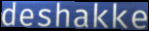
deshakke